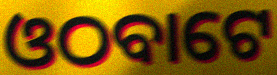
ଓଠବାଟେ